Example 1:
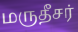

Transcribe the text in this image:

மருதீசர்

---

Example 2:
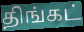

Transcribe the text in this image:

திங்கட்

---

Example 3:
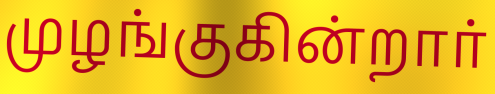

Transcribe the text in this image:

முழங்குகின்றார்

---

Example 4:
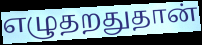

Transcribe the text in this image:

எழுதறதுதான்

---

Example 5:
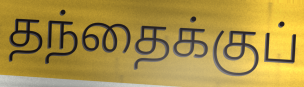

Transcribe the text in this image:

தந்தைக்குப்